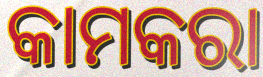
କାମକରା